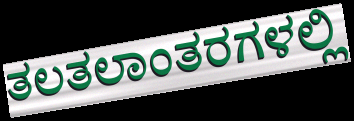
ತಲತಲಾಂತರಗಳಲ್ಲಿ